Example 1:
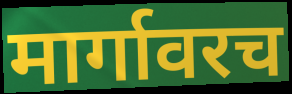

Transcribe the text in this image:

मार्गावरच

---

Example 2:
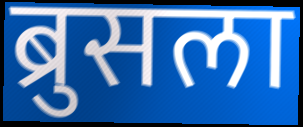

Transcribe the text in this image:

ब्रुसला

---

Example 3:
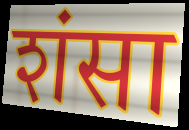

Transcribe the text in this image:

शंसा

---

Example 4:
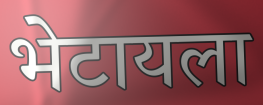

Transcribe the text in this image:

भेटायला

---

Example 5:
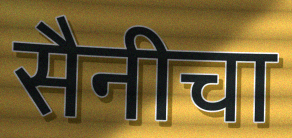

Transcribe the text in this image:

सैनीचा